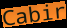
Cabir